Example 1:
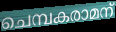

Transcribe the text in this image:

ചെമ്പകരാമന്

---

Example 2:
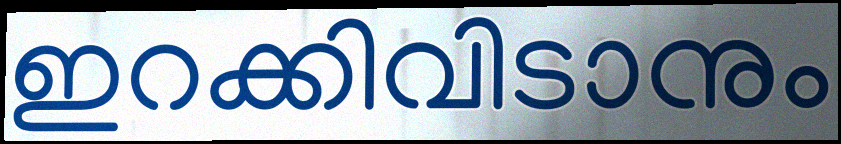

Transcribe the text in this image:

ഇറക്കിവിടാനും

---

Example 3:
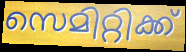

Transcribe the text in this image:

സെമിറ്റിക്ക്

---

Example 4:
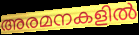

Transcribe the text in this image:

അരമനകളിൽ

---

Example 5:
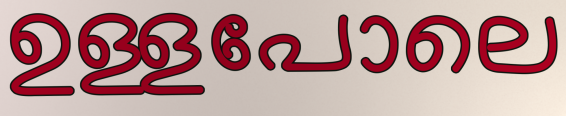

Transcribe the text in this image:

ഉള്ളപോലെ